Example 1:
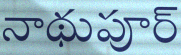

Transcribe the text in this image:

నాథుపూర్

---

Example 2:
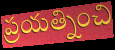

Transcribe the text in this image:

ప్రయత్నించి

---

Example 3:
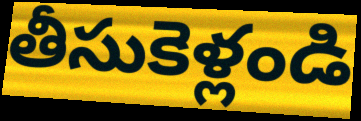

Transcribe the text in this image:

తీసుకెళ్లండి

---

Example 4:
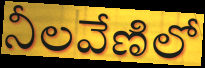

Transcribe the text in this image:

నీలవేణిలో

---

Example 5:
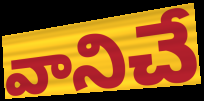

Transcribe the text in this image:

వానిచే